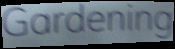
Gardening